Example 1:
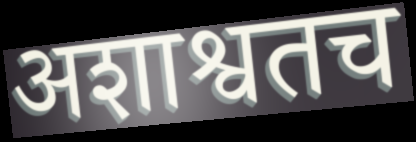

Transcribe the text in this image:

अशाश्वतच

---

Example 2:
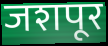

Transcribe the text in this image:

जशपूर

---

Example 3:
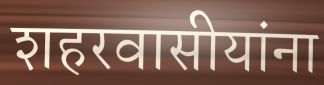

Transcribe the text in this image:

शहरवासीयांना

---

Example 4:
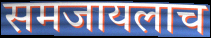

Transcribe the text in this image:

समजायलाच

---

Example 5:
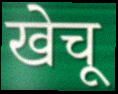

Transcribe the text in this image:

खेचू